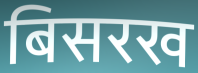
बिसरख